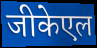
जीकेएल